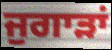
ਜੁਗਾੜਾਂ